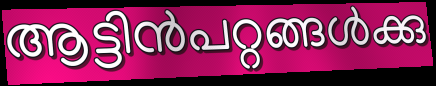
ആട്ടിൻപറ്റങ്ങൾക്കു